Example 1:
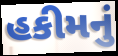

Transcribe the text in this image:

હકીમનું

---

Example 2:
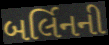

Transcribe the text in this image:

બર્લિનની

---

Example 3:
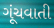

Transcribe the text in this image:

ગૂંચવાતી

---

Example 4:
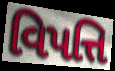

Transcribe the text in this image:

વિપત્તિ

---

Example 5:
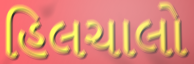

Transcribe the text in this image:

હિલચાલો